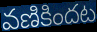
వణికిందట